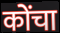
कोंचा